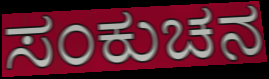
ಸಂಕುಚನ